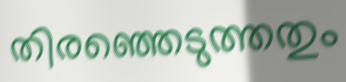
തിരഞ്ഞെടുത്തതും